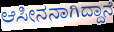
ಆಸೀನನಾಗಿದ್ದಾನೆ